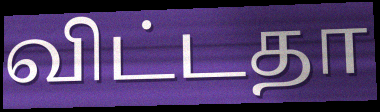
விட்டதா